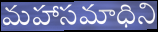
మహాసమాధిని